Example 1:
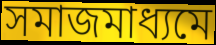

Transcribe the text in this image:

সমাজমাধ্যমে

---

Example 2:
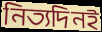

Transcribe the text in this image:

নিত্যদিনই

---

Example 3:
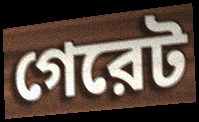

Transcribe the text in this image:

গেরেট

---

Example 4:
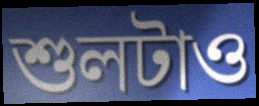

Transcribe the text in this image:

শুলটাও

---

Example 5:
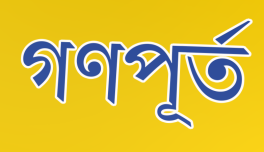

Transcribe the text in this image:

গণপূর্ত